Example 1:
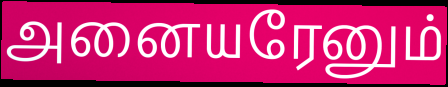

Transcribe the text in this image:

அனையரேனும்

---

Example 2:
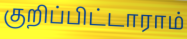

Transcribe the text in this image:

குறிப்பிட்டாராம்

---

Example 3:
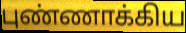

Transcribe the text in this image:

புண்ணாக்கிய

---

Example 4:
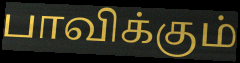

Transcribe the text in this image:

பாவிக்கும்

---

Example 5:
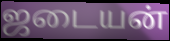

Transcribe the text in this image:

ஜடையன்